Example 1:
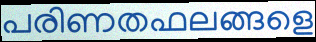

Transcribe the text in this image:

പരിണതഫലങ്ങളെ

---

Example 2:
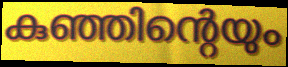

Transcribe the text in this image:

കുഞ്ഞിന്റെയും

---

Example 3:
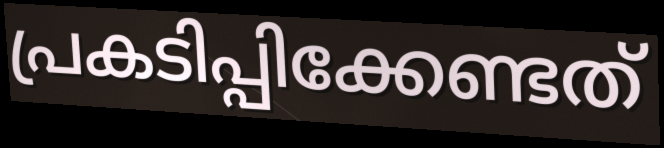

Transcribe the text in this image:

പ്രകടിപ്പിക്കേണ്ടത്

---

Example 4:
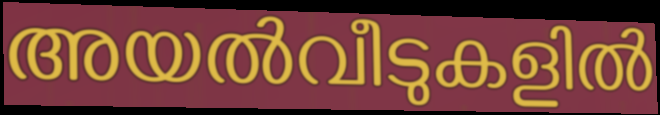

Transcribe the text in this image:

അയൽവീടുകളിൽ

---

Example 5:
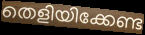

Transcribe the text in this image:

തെളിയിക്കേണ്ട